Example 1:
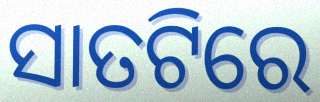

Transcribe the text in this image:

ସାତଟିରେ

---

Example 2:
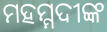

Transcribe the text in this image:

ମହମ୍ମଦୀଙ୍କ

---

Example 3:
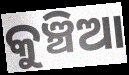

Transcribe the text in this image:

କୁଞ୍ଚିଆ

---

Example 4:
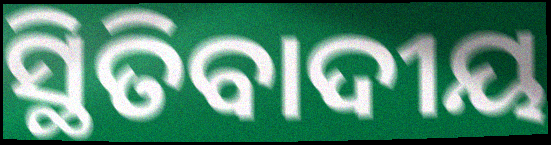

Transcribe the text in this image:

ସ୍ଥିତିବାଦୀୟ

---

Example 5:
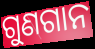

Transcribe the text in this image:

ଗୁଣଗାନ